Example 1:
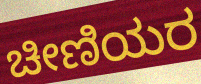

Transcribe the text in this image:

ಚೀಣಿಯರ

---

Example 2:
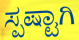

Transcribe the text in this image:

ಸ್ಪಷ್ಟಾಗಿ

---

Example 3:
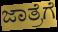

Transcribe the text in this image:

ಜಾತ್ರೆಗೆ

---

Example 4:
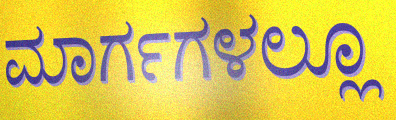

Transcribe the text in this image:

ಮಾರ್ಗಗಳಲ್ಲೂ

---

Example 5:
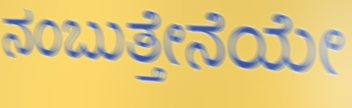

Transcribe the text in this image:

ನಂಬುತ್ತೇನೆಯೇ